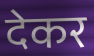
देकर